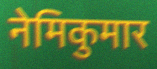
नेमिकुमार